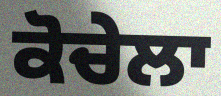
ਕੋਚੇਲਾ